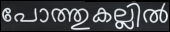
പോത്തുകല്ലിൽ